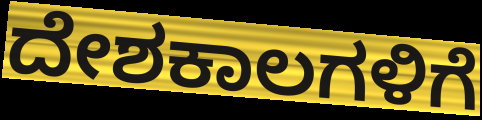
ದೇಶಕಾಲಗಳಿಗೆ